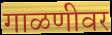
गाळणीवर